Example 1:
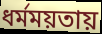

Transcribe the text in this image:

ধর্মময়তায়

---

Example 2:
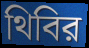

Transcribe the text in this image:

থিবির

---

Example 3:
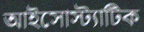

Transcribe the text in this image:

আইসোস্ট্যাটিক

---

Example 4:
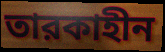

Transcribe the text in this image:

তারকাহীন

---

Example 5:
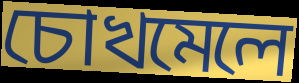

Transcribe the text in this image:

চোখমেলে